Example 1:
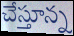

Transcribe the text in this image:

చేస్తూన్న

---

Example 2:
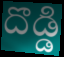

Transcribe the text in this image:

దొడ్డి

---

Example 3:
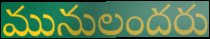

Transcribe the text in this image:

మునులందరు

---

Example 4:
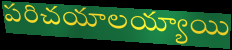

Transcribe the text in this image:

పరిచయాలయ్యాయి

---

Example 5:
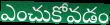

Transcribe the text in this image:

ఎంచుకోవడం